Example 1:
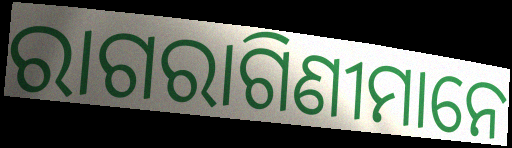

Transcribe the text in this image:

ରାଗରାଗିଣୀମାନେ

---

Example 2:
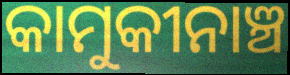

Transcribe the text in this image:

କାମୁକୀନାଞ୍ଚ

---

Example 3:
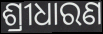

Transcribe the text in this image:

ଶ୍ରୀଧାରଣ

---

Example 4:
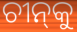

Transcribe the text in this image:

ଚୀନ୍‌କୁ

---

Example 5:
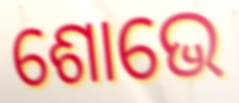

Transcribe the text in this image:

ଶୋଭେ